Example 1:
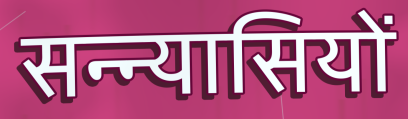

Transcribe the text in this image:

सन्न्यासियों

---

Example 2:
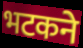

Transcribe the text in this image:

भटकने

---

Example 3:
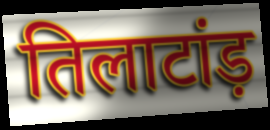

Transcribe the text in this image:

तिलाटांड़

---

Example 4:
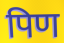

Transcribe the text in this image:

पिण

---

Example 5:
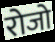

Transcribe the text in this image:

रोजो